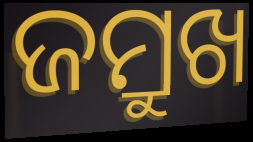
ଜମ୍ରୁଖ